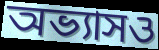
অভ্যাসও